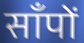
साँपों